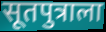
सूतपुत्राला